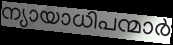
ന്യായാധിപന്മാർ